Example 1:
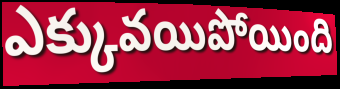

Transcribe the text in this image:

ఎక్కువయిపోయింది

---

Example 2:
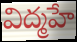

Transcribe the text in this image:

విద్మహే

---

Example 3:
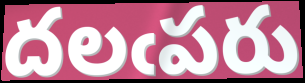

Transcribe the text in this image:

దలఁపరు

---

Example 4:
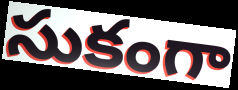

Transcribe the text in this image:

సుకంగా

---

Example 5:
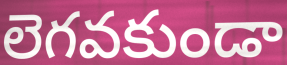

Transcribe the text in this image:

లెగవకుండా